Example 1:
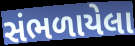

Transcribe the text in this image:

સંભળાયેલા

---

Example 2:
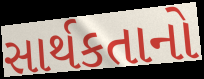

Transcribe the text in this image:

સાર્થકતાનો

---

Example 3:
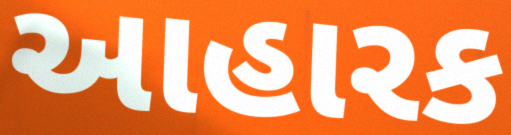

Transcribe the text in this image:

આહારક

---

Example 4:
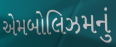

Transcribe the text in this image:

એમબોલિઝમનું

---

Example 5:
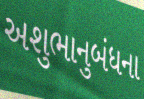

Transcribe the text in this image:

અશુભાનુબંધના